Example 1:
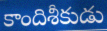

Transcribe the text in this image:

కాందిశీకుడు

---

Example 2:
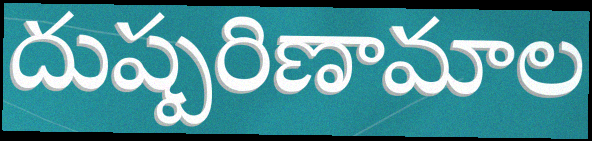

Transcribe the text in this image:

దుష్పరిణామాల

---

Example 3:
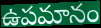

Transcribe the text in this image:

ఉపమానం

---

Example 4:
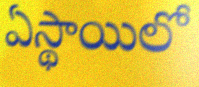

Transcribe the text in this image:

ఏస్థాయిలో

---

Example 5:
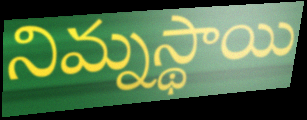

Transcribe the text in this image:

నిమ్నస్థాయి